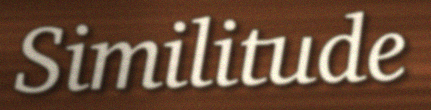
Similitude